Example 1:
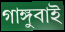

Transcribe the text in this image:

গাঙ্গুবাই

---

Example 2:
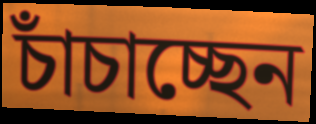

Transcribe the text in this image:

চাঁচাচ্ছেন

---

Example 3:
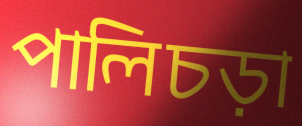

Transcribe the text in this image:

পালিচড়া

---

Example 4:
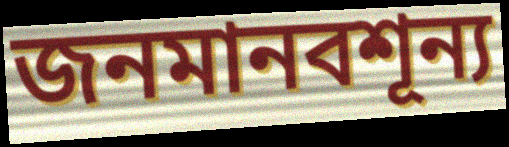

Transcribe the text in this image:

জনমানবশূন্য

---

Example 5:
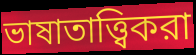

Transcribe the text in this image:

ভাষাতাত্ত্বিকরা